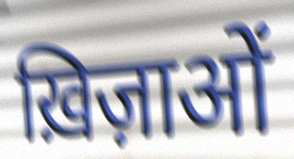
ख़िज़ाओं